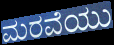
ಮರವೆಯು